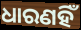
ଧାରଣହିଁ